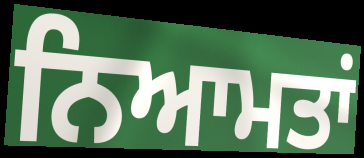
ਨਿਆਮਤਾਂ